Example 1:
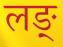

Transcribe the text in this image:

लङ्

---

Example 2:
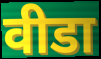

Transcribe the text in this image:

वीडा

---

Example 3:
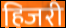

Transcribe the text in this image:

हिजरी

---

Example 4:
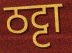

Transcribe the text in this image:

ठट्टा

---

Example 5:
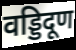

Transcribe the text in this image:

वड्डिदूण